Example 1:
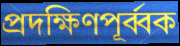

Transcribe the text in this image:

প্রদক্ষিণপূর্ব্বক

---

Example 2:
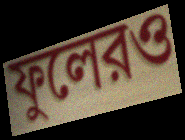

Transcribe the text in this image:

ফুলেরও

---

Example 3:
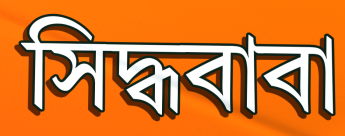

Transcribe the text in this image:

সিদ্ধবাবা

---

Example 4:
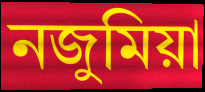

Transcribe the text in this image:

নজুমিয়া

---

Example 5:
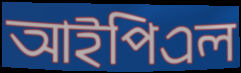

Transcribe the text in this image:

আইপিএল